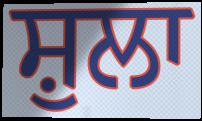
ਸ਼ੁਲਾ